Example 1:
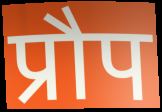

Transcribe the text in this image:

प्रौप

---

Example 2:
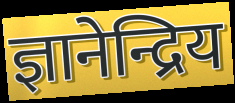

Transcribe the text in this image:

ज्ञानेन्द्रिय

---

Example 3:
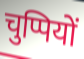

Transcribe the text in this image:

चुप्पियों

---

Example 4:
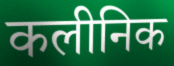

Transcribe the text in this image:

कलीनिक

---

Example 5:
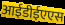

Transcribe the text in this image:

आईडीईएएस